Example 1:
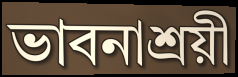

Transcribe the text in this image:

ভাবনাশ্রয়ী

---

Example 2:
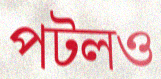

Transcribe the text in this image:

পটলও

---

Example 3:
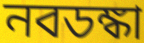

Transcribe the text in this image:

নবডঙ্কা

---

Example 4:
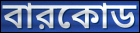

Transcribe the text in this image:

বারকোড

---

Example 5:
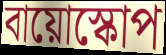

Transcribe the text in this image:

বায়োস্কোপ